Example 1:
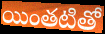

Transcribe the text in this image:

యింతటితో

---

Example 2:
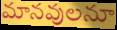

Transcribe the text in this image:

మానవులనూ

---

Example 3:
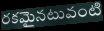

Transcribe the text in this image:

రకమైనటువంటి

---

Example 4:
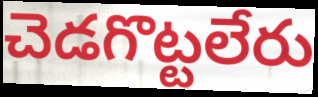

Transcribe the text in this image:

చెడగొట్టలేరు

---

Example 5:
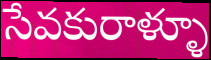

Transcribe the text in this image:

సేవకురాళ్ళూ